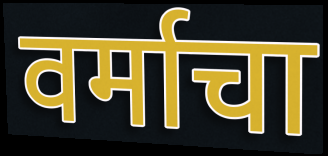
वर्माचा